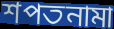
শপতনামা